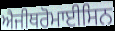
ਐਜੀਥਰੋਮਾਈਸਿਨ